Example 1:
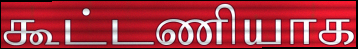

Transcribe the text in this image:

கூட்டணியாக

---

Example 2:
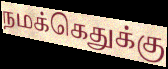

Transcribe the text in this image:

நமக்கெதுக்கு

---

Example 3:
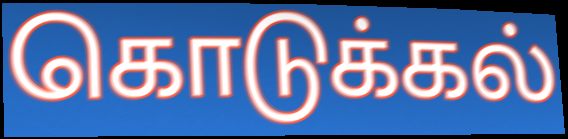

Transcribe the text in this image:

கொடுக்கல்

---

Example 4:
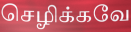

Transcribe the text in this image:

செழிக்கவே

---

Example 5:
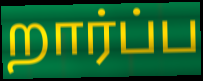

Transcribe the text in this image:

றார்ப்ப